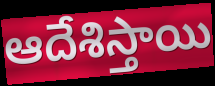
ఆదేశిస్తాయి